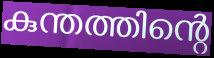
കുന്തത്തിന്റെ